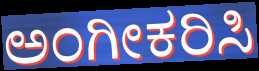
ಅಂಗೀಕರಿಸಿ